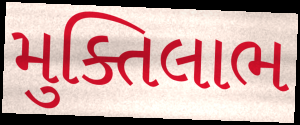
મુક્તિલાભ